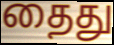
தைது